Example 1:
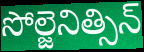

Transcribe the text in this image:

సోల్జెనిత్సిన్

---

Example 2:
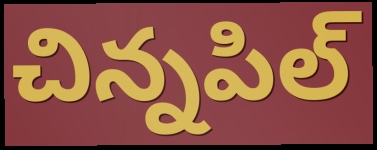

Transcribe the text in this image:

చిన్నపిల్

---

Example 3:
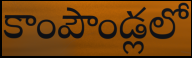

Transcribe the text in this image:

కాంపౌండ్లలో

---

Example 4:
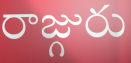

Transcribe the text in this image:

రాజ్గురు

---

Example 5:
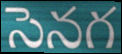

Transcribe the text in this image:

సెనగ